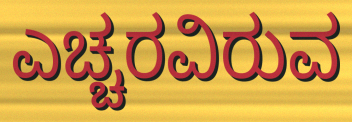
ಎಚ್ಚರವಿರುವ